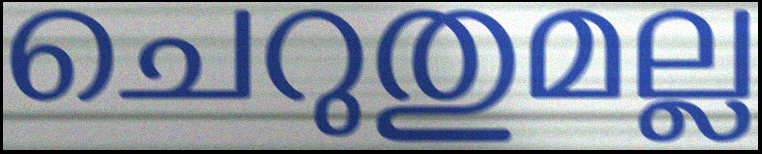
ചെറുതുമല്ല